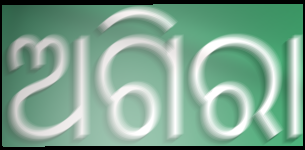
ଅଗିରା